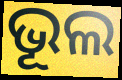
ଭୂଲ